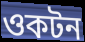
ওকটন